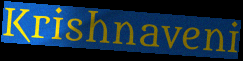
Krishnaveni